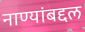
नाण्यांबद्दल